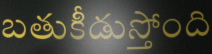
బతుకీడుస్తోంది